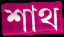
শাথ